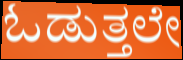
ಓಡುತ್ತಲೇ